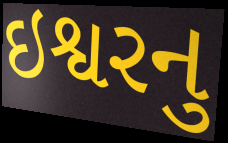
ઇશ્વરનુ